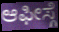
ಆಫೀಸ್ಗೆ